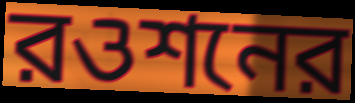
রওশনের